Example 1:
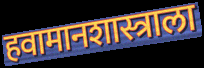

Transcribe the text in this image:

हवामानशास्त्राला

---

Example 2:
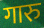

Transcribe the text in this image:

गारु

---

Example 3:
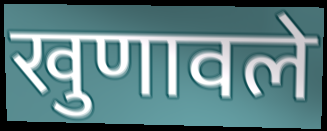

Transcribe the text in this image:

खुणावले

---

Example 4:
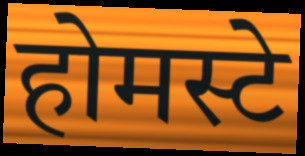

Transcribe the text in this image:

होमस्टे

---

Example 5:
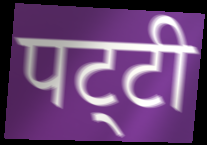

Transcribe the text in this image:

पट्‌टी